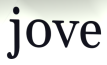
jove